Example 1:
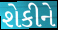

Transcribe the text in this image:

શેકીને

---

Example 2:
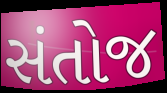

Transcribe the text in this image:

સંતોજ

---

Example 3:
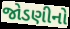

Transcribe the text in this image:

જોડણીનો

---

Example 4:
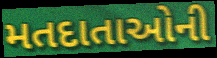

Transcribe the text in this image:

મતદાતાઓની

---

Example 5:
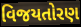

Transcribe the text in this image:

વિજયતોરણ